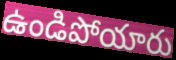
ఉండిపోయారు